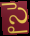
సై